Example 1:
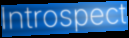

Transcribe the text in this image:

Introspect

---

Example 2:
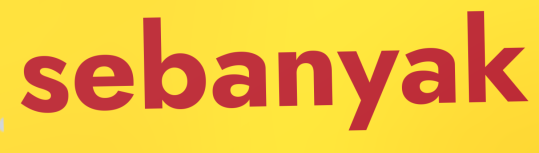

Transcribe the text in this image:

sebanyak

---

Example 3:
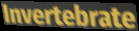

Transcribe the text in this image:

Invertebrate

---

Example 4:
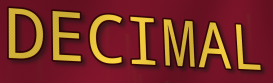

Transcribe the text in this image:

DECIMAL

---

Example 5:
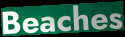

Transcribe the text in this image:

Beaches